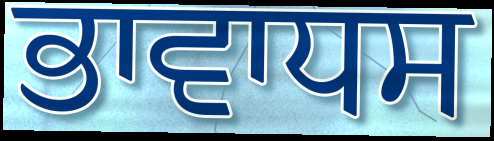
ਭਾਵਾਧਸ